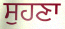
ਸੁਹਣਾ